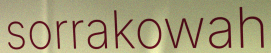
sorrakowah